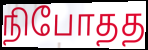
நிபோதத